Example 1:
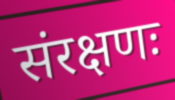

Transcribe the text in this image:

संरक्षणः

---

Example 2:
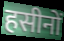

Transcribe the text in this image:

हसीनों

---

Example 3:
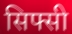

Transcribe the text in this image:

सिफ्सी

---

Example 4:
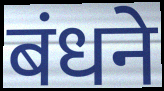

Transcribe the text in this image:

बंधने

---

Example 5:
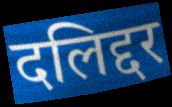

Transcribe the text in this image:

दलिद्दर